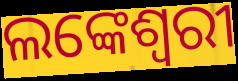
ଲଙ୍କେଶ୍ଵରୀ